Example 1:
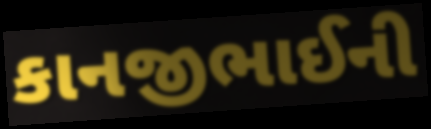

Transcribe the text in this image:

કાનજીભાઈની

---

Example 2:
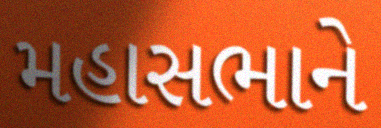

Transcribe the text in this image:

મહાસભાને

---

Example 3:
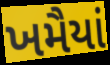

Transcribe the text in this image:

ખમૈયાં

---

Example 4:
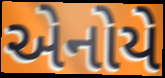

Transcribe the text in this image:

એનોયે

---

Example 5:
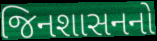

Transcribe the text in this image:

જિનશાસનનો